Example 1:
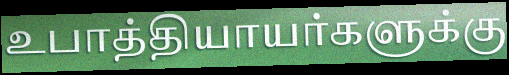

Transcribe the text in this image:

உபாத்தியாயர்களுக்கு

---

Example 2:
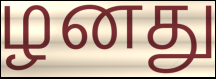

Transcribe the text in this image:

ழனது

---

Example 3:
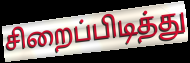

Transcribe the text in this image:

சிறைப்பிடித்து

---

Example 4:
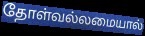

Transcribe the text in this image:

தோள்வல்லமையால்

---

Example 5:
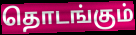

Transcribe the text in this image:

தொடங்கும்